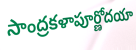
సాంద్రకళాపూర్ణోదయా